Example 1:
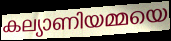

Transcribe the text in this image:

കല്യാണിയമ്മയെ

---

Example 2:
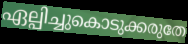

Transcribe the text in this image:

ഏല്പിച്ചുകൊടുക്കരുതേ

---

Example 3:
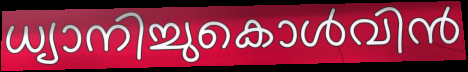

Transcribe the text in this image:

ധ്യാനിച്ചുകൊൾവിൻ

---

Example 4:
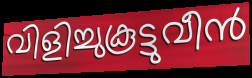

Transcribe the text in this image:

വിളിച്ചുകൂട്ടുവീൻ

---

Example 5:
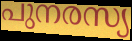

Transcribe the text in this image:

പുനരസ്യ